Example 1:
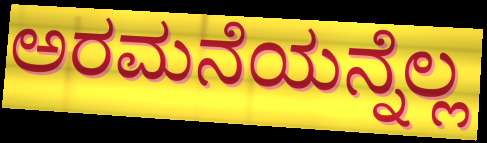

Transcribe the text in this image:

ಅರಮನೆಯನ್ನೆಲ್ಲ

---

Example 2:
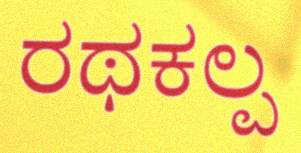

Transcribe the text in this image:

ರಥಕಲ್ಪ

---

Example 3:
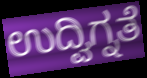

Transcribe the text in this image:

ಉದ್ವಿಗ್ನತೆ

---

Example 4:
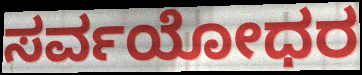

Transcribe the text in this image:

ಸರ್ವಯೋಧರ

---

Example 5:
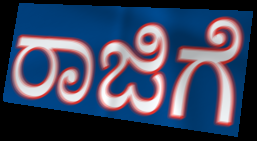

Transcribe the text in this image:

ರಾಜಿಗೆ